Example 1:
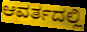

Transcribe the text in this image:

ಆವರ್ತದಲ್ಲಿ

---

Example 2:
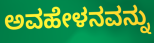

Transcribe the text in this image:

ಅವಹೇಳನವನ್ನು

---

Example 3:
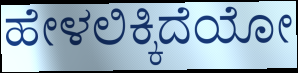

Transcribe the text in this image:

ಹೇಳಲಿಕ್ಕಿದೆಯೋ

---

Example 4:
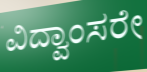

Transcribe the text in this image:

ವಿದ್ವಾಂಸರೇ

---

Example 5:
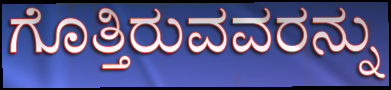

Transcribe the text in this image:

ಗೊತ್ತಿರುವವರನ್ನು